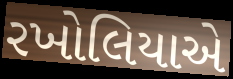
રખોલિયાએ